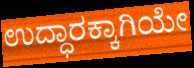
ಉದ್ಧಾರಕ್ಕಾಗಿಯೇ